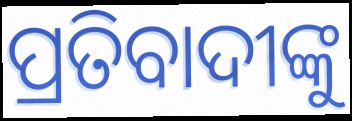
ପ୍ରତିବାଦୀଙ୍କୁ